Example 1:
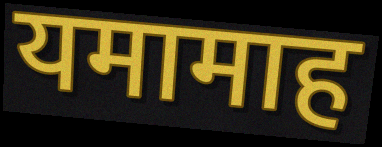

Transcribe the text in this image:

यमामाह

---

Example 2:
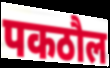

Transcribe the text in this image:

पकठौल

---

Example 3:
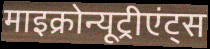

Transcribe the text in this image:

माइक्रोन्यूट्रीएंट्स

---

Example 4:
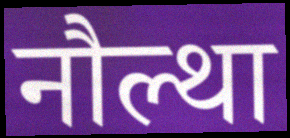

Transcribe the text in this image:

नौल्था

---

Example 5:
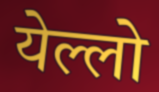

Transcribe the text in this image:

येल्लो